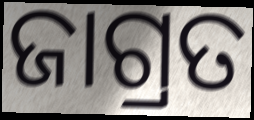
ଜାଗ୍ରତ